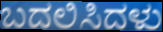
ಬದಲಿಸಿದಳು